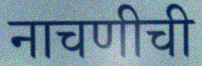
नाचणीची